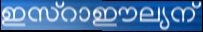
ഇസ്റാഈല്യന്